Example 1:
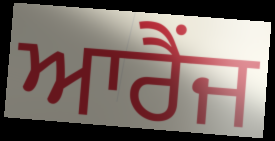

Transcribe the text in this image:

ਆਰੈਂਜ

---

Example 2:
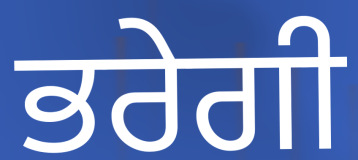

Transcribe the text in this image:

ਭਰੇਗੀ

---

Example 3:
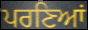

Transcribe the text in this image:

ਪਰਣਿਆਂ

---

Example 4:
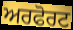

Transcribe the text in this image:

ਅਰਫੋਰਟ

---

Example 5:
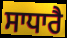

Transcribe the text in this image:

ਸਾਧਾਰੈ